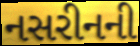
નસરીનની